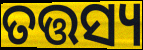
ତତ୍ତସ୍ୟ